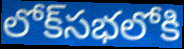
లోక్‌సభలోకి